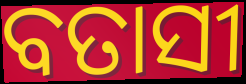
ବତାସୀ